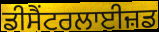
ਡੀਸੈਂਟਰਲਾਈਜ਼ਡ